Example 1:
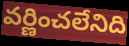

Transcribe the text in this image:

వర్ణించలేనిది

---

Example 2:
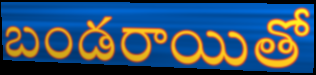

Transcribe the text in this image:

బండరాయితో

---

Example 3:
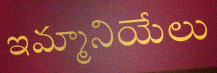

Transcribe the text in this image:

ఇమ్మానియేలు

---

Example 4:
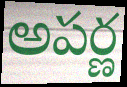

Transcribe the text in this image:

అపర్ణ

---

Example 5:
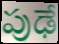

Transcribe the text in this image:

పుఢే